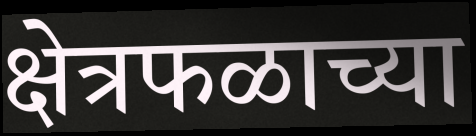
क्षेत्रफळाच्या